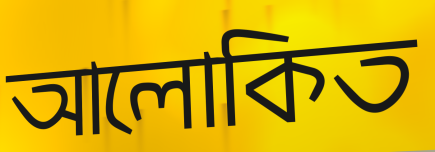
আলোকিত